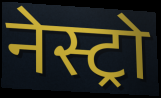
नेस्ट्रो